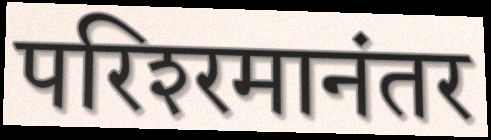
परिश्रमानंतर